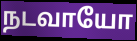
நடவாயோ